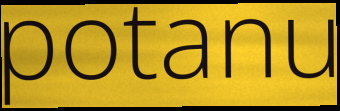
potanu